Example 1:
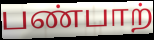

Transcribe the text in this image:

பண்பாற்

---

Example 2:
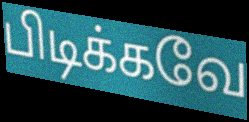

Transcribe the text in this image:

பிடிக்கவே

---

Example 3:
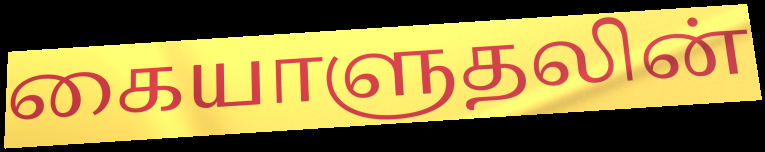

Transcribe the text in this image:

கையாளுதலின்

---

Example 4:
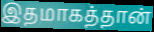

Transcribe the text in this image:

இதமாகத்தான்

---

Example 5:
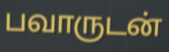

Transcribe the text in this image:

பவாருடன்